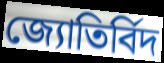
জ্যোতির্বিদ